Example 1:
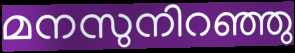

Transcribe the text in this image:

മനസുനിറഞ്ഞു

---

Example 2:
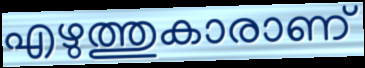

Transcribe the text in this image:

എഴുത്തുകാരാണ്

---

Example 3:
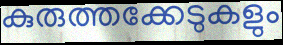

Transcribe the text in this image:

കുരുത്തക്കേടുകളും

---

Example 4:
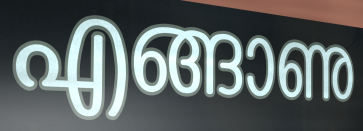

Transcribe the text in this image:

എങ്ങാണു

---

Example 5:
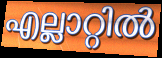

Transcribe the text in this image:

എല്ലാറ്റിൽ